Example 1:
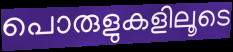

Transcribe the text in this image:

പൊരുളുകളിലൂടെ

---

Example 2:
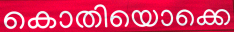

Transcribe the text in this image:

കൊതിയൊക്കെ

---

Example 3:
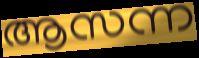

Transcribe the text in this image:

ആസന്ന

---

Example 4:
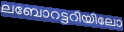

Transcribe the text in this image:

ലബോറട്ടറിയിലോ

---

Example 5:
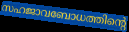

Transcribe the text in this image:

സഹജാവബോധത്തിന്റെ